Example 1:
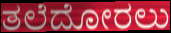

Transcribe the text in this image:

ತಲೆದೋರಲು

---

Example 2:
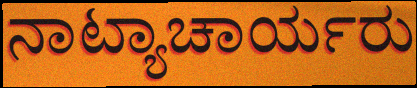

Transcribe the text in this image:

ನಾಟ್ಯಾಚಾರ್ಯರು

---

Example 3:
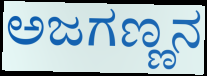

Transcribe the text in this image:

ಅಜಗಣ್ಣನ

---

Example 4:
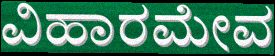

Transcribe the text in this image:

ವಿಹಾರಮೇವ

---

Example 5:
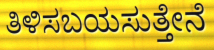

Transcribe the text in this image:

ತಿಳಿಸಬಯಸುತ್ತೇನೆ